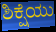
ಶಿಕ್ಷೆಯು